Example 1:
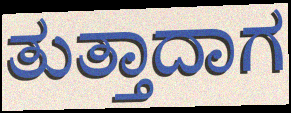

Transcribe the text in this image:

ತುತ್ತಾದಾಗ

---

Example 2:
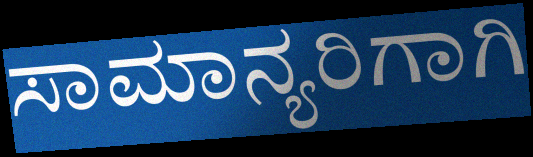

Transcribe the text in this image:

ಸಾಮಾನ್ಯರಿಗಾಗಿ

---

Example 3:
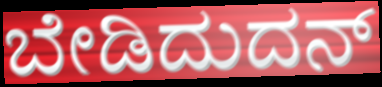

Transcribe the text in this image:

ಬೇಡಿದುದನ್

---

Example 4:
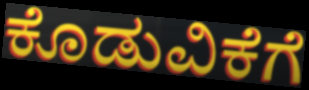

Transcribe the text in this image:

ಕೊಡುವಿಕೆಗೆ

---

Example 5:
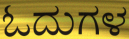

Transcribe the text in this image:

ಓದುಗಳ